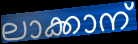
ലാക്കാന്